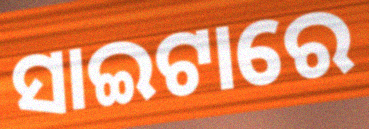
ସାଇଟାରେ